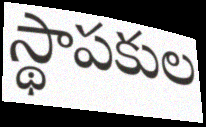
స్థాపకుల